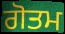
ਗੋਤਮ